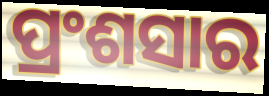
ପ୍ରଂଶସାର